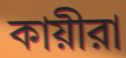
কায়ীরা